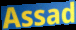
Assad